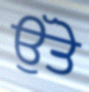
ਉੱਤੇ